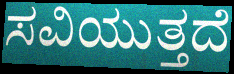
ಸವಿಯುತ್ತದೆ